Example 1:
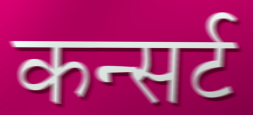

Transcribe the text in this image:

कन्सर्ट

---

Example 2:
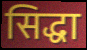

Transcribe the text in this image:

सिद्धा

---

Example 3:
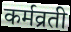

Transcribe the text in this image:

कर्मव्रती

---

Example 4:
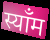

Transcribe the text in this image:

स्याँम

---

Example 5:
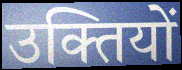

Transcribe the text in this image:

उक्तियों